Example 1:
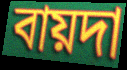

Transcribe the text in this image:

বায়দা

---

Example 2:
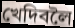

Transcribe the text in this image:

খেদিবলৈ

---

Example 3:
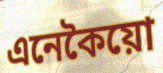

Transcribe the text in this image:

এনেকৈয়ো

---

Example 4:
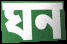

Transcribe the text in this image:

ঘন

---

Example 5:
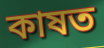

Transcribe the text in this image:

কাষত